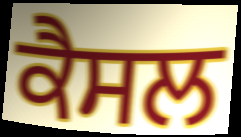
ਕੈਸਲ